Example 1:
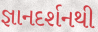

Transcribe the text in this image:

જ્ઞાનદર્શનથી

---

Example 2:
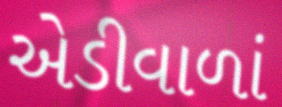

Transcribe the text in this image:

એડીવાળાં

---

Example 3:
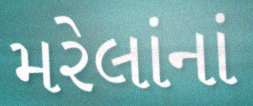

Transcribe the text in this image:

મરેલાંનાં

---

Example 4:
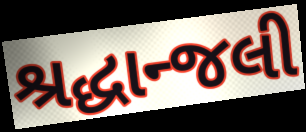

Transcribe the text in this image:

શ્રદ્ધાન્જલી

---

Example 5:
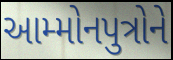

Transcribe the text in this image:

આમ્મોનપુત્રોને